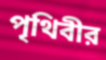
পৃথিবীর